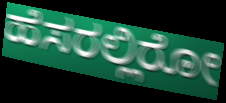
ಹೆಸರಲ್ಲಿರೋ